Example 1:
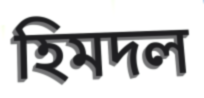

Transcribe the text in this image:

হিমদল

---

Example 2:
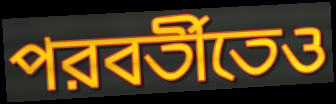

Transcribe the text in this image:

পরবর্তীতেও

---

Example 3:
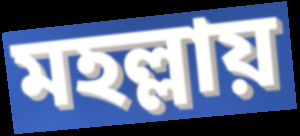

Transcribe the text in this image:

মহল্লায়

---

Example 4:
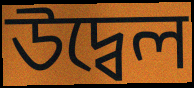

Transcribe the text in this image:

উদ্বেল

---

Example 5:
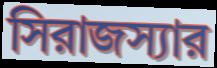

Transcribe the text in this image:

সিরাজস্যার